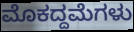
ಮೊಕದ್ದಮೆಗಳು